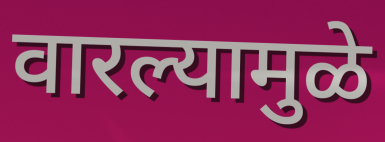
वारल्यामुळे